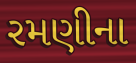
રમણીના